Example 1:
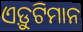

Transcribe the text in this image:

ଏଡ଼ୁଟିମାନ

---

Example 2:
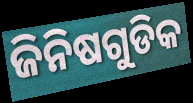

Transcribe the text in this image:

ଜିନିଷଗୁଡିକ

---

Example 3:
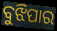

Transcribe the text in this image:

ବୁଝିପାର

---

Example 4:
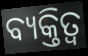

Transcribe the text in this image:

ବ୍ୟକ୍ତିତ୍ଵ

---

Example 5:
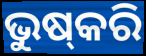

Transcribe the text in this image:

ଭୁଷ୍‌କରି